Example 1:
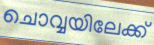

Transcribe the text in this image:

ചൊവ്വയിലേക്ക്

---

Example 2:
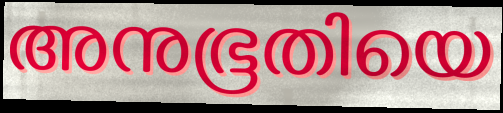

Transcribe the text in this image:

അനുഭൂതിയെ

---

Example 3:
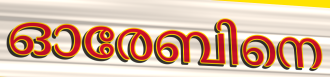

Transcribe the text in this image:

ഓരേബിനെ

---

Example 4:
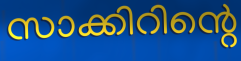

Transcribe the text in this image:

സാക്കിറിന്റെ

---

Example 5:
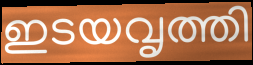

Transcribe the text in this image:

ഇടയവൃത്തി